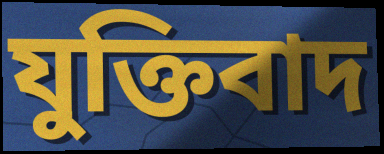
যুক্তিবাদ